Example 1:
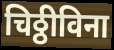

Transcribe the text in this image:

चिठ्ठीविना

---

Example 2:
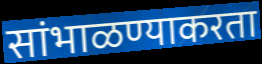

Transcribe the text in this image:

सांभाळण्याकरता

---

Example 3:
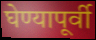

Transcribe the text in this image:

घेण्यापूर्वी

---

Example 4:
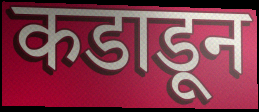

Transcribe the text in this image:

कडाडून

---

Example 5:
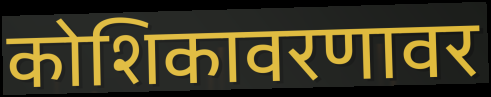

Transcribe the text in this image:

कोशिकावरणावर